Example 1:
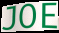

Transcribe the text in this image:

JOE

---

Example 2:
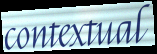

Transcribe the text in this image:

contextual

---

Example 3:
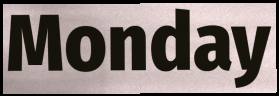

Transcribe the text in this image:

Monday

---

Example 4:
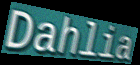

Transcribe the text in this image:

Dahlia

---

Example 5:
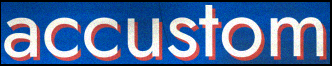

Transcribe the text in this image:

accustom